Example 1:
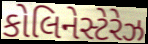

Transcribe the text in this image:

કોલિનેસ્ટેરેઝ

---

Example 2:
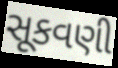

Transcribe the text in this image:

સૂકવણી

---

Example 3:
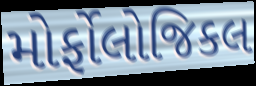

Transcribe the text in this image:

મોર્ફોલોજિકલ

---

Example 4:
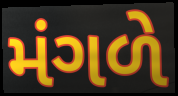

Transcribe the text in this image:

મંગળે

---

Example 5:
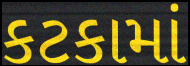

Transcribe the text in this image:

કટકામાં